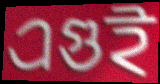
এগুই